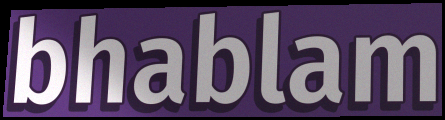
bhablam